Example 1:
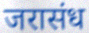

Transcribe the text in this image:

जरासंध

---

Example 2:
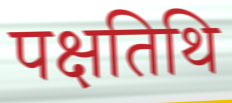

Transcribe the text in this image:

पक्षतिथि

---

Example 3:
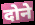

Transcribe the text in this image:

दोने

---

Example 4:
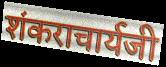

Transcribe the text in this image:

शंकराचार्यजी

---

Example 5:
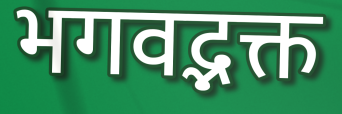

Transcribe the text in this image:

भगवद्भक्त